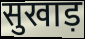
सुखाड़